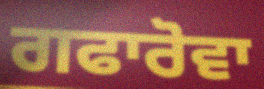
ਗਫਾਰੋਵਾ